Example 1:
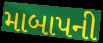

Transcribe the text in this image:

માબાપની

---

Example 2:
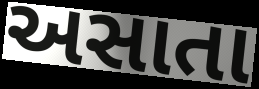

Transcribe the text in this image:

અસાતા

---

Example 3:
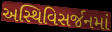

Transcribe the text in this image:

અસ્થિવિસર્જનમાં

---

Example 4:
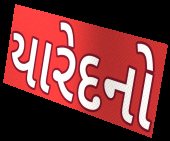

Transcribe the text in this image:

યારેદનો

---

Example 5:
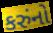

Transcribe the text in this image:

કરુંનો